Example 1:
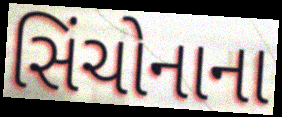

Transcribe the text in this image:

સિંચોનાના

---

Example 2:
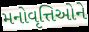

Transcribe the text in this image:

મનોવૃત્તિઓને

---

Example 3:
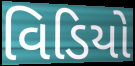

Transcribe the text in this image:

વિડિયો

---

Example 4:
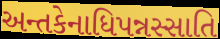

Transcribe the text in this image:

અન્તકેનાધિપન્નસ્સાતિ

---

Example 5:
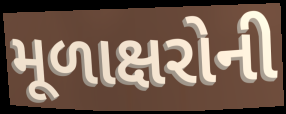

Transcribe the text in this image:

મૂળાક્ષરોની